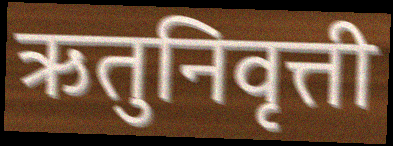
ऋतुनिवृत्ती